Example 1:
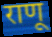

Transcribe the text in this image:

राणू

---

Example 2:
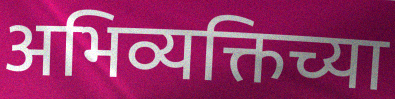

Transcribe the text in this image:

अभिव्यक्तिच्या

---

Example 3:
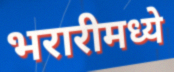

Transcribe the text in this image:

भरारीमध्ये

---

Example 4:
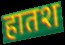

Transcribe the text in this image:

हातश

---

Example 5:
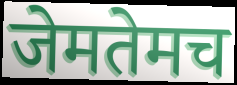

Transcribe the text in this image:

जेमतेमच